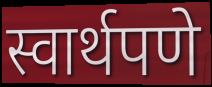
स्वार्थपणे